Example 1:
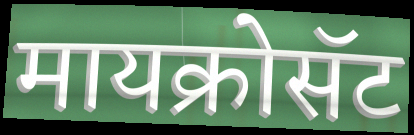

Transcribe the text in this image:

मायक्रोसॅट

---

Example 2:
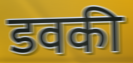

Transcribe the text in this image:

डवकी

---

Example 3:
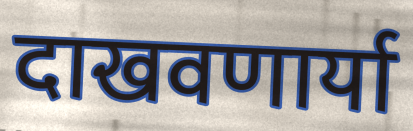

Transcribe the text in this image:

दाखवणार्या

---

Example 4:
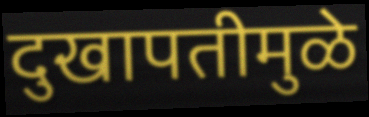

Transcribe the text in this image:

दुखापतीमुळे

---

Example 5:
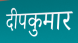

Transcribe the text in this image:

दीपकुमार